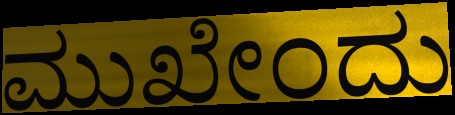
ಮುಖೇಂದು